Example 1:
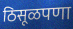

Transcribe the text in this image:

ठिसूळपणा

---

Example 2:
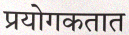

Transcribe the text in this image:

प्रयोगकतात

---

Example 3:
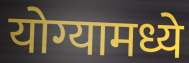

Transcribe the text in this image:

योग्यामध्ये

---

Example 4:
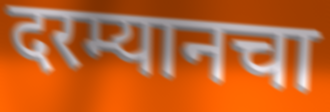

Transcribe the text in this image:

दरम्यानचा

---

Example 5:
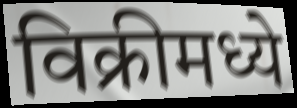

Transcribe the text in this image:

विक्रीमध्ये